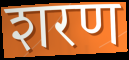
शरण